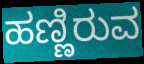
ಹಣ್ಣಿರುವ